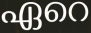
ഏറെ